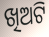
ଖିଅଟି